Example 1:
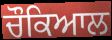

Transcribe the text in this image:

ਚੌਕਿਆਲ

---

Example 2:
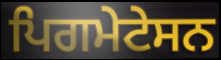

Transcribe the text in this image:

ਪਿਗਮੇਟੇਸਨ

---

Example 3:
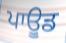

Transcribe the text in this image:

ਪਾਊਡ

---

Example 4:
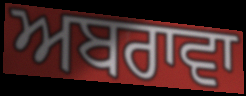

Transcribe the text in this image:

ਅਬਰਾਵਾ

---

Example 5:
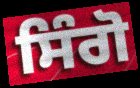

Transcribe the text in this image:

ਸਿੰਗੋ